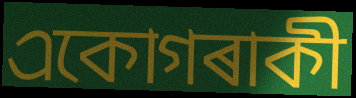
একোগৰাকী